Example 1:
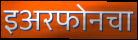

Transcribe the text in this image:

इअरफोनचा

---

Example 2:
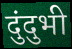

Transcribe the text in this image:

दुंदुभी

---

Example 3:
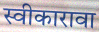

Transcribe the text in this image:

स्वीकारावा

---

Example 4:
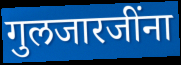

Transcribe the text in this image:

गुलजारजींना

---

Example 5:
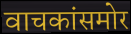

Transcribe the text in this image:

वाचकांसमोर